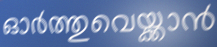
ഓർത്തുവെയ്ക്കാൻ